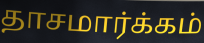
தாசமார்க்கம்